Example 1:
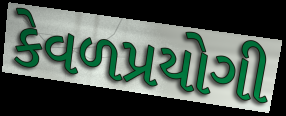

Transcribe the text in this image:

કેવળપ્રયોગી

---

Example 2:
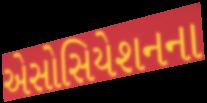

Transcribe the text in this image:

એસોસિયેશનના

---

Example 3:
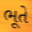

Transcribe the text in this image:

ભૂતે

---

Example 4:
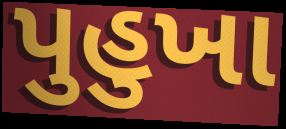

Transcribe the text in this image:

પુહુખા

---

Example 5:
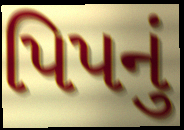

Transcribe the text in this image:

પિપનું